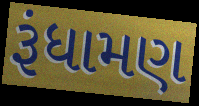
રૂંધામણ